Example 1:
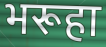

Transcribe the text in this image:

भरूहा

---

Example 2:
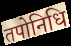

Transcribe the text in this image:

तपोनिधि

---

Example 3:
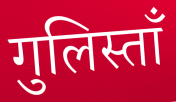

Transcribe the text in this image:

गुलिस्ताँ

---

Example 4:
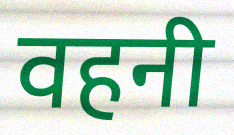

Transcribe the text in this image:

वहनी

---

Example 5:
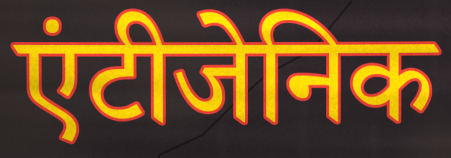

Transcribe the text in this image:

एंटीजेनिक